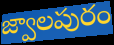
జ్వాలపురం